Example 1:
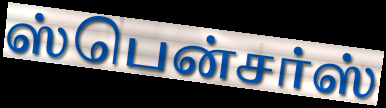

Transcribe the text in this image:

ஸ்பென்சர்ஸ்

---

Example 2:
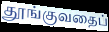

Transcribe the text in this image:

தூங்குவதைப்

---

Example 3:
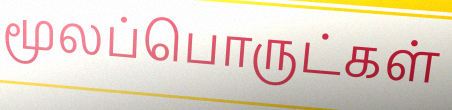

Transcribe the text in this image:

மூலப்பொருட்கள்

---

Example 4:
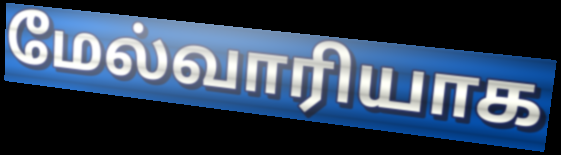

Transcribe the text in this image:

மேல்வாரியாக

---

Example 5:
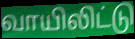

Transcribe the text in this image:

வாயிலிட்டு